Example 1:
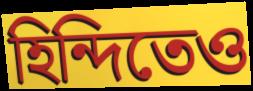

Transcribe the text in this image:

হিন্দিতেও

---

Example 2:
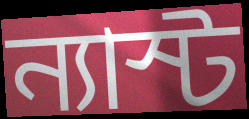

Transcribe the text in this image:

ন্যাস্ট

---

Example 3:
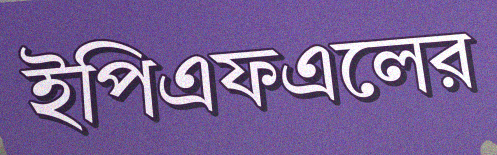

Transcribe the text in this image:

ইপিএফএলের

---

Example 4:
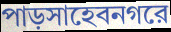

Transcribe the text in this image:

পাড়সাহেবনগরে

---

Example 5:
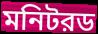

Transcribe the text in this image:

মনিটরড